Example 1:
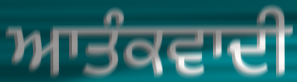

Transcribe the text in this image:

ਆਤੰਕਵਾਦੀ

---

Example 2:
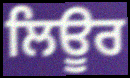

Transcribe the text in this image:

ਲਿਊਰ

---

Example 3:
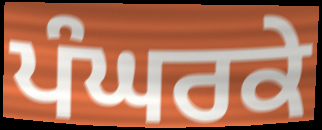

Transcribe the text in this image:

ਪੰਘਰਕੇ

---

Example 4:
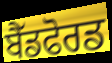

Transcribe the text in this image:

ਬੈੱਡਫੋਰਡ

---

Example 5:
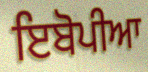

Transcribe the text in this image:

ਇਬੋਪੀਆ